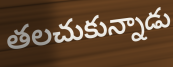
తలచుకున్నాడు